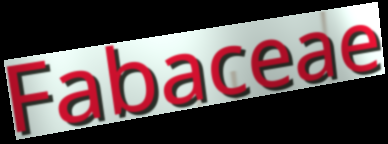
Fabaceae